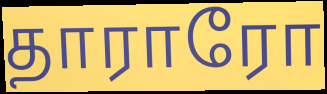
தாராரோ